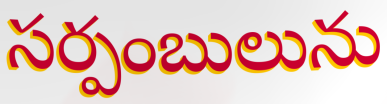
సర్పంబులును